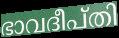
ഭാവദീപ്തി